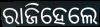
ରାଜିହେଲେ